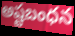
అష్టబంధన